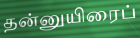
தன்னுயிரைப்